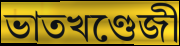
ভাতখণ্ডেজী